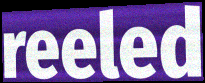
reeled